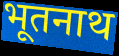
भूतनाथ